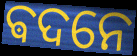
ଵଦନେ